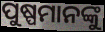
ପୁଷ୍ପମାନଙ୍କୁ